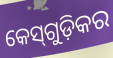
କେସ୍‌ଗୁଡ଼ିକର